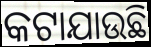
କଟାଯାଉଛି